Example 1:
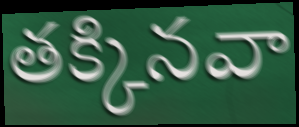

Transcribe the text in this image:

తక్కినవా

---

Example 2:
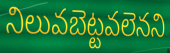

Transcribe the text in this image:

నిలువబెట్టవలెనని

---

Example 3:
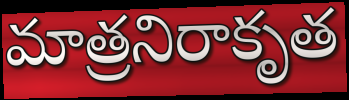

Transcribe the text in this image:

మాత్రనిరాకృత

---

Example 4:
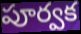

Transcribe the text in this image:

పూర్వక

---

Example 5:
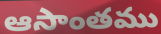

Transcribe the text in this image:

ఆసాంతము